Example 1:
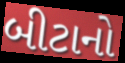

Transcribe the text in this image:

બીટાનો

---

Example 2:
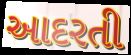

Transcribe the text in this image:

આદરતી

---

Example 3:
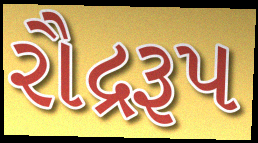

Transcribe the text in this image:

રૌદ્રરૂપ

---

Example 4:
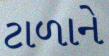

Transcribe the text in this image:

ટાળાને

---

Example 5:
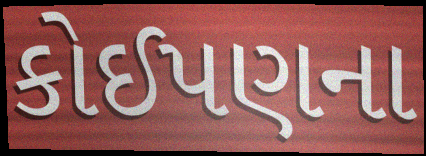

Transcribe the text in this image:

કોઈપણના